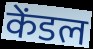
केंडल